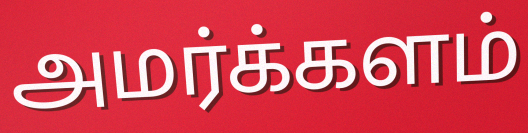
அமர்க்களம்